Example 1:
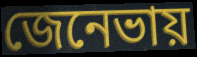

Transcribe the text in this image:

জেনেভায়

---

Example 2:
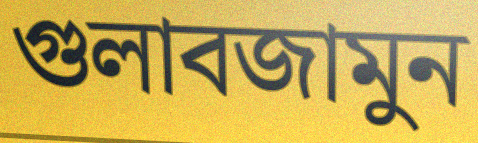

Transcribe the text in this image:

গুলাবজামুন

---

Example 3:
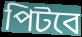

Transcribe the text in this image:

পিটবে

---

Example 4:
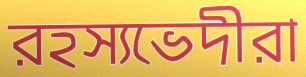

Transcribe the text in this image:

রহস্যভেদীরা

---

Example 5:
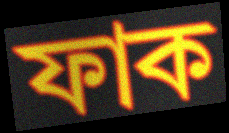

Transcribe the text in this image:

ফাক